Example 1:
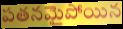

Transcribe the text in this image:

పతనమైపోయిన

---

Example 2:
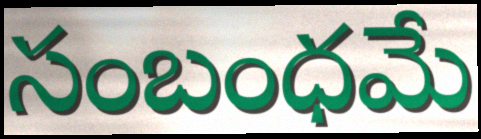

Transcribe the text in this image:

సంబంధమే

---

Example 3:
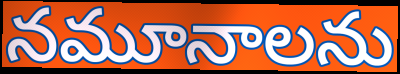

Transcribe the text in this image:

నమూనాలను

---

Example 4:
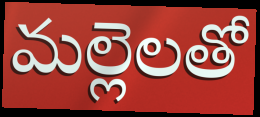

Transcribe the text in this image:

మల్లెలతో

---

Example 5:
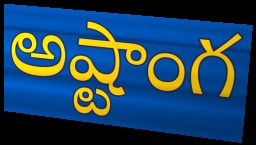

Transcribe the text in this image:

అష్టాంగ